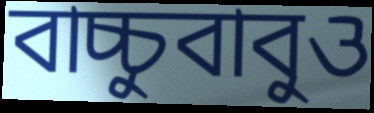
বাচ্চুবাবুও